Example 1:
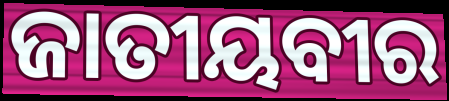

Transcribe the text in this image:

ଜାତୀୟବୀର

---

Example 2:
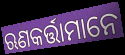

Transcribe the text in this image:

ଋଣକର୍ତ୍ତାମାନେ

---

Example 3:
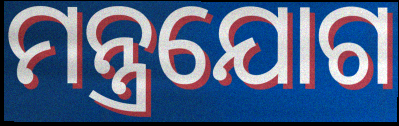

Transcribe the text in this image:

ମନ୍ତ୍ରଯୋଗ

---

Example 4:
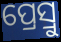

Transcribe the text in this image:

ପ୍ରେସ୍ରୁ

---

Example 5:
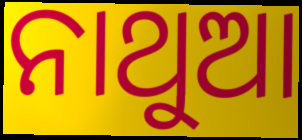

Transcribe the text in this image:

ନାଥୁଆ